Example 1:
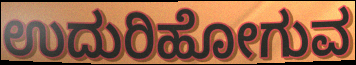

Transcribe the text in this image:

ಉದುರಿಹೋಗುವ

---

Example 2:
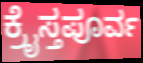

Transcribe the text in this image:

ಕ್ರೈಸ್ತಪೂರ್ವ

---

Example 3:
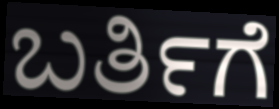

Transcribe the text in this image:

ಬರ್ತಿಗೆ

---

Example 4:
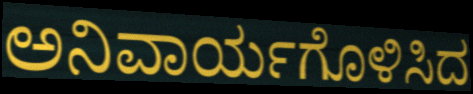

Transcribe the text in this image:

ಅನಿವಾರ್ಯಗೊಳಿಸಿದ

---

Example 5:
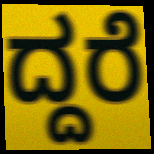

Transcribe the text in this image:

ದ್ದರೆ